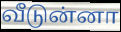
வீடுன்னா